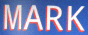
MARK